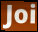
Joi